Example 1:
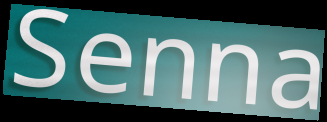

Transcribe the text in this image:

Senna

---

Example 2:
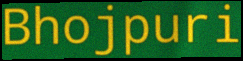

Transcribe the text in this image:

Bhojpuri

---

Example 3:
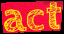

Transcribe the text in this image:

act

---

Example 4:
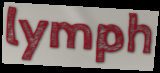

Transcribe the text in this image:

lymph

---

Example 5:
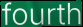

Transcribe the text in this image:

fourth